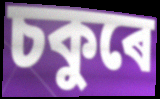
চকুৰে